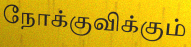
நோக்குவிக்கும்